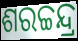
ଶରଚ୍ଚନ୍ଦ୍ର